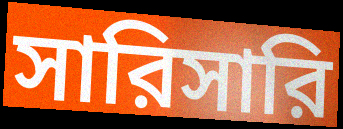
সারিসারি